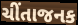
ચીંતાજનક